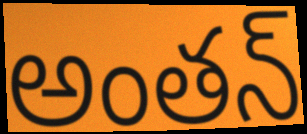
అంతన్